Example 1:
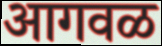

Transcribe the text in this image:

आगवळ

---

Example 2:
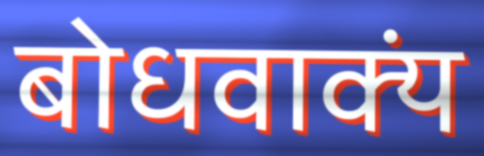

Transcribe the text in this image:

बोधवाक्यं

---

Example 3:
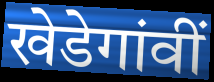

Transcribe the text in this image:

खेडेगांवीं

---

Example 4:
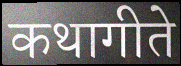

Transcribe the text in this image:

कथागीते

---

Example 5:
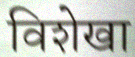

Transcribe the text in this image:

विशेखा